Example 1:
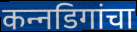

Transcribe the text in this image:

कन्नडिगांचा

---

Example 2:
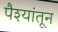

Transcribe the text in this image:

पैश्यांतून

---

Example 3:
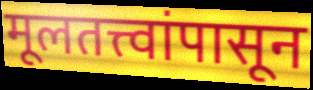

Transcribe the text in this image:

मूलतत्त्वांपासून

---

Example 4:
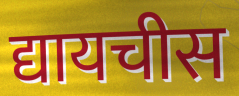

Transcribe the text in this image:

द्यायचीस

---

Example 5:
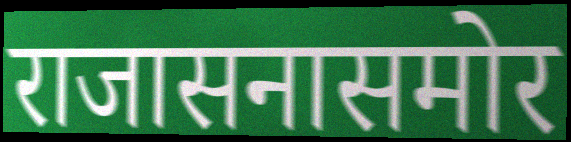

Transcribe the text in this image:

राजासनासमोर